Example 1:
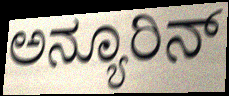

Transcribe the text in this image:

ಅನ್ಯೂರಿನ್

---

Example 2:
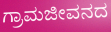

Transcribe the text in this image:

ಗ್ರಾಮಜೀವನದ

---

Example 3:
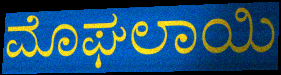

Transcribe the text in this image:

ಮೊಘಲಾಯಿ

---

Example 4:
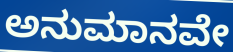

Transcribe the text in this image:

ಅನುಮಾನವೇ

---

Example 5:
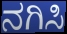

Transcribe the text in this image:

ನಗಿಸಿ